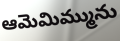
ఆమెమిమ్మును